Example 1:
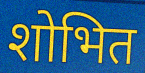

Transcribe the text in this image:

शोभित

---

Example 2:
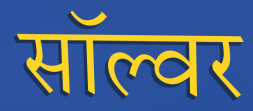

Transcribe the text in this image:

सॉल्वर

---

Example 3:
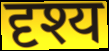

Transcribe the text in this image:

दृश्‍य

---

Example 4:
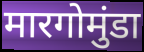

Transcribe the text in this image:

मारगोमुंडा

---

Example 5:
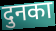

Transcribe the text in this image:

दुनका